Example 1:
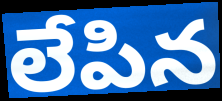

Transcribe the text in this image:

లేపిన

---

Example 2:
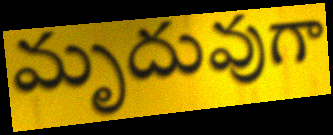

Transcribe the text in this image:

మృదువుగా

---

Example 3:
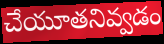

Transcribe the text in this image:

చేయూతనివ్వడం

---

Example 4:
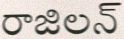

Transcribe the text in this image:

రాజిలన్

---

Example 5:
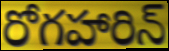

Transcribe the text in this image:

రోగహారిన్